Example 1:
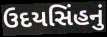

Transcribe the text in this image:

ઉદયસિંહનું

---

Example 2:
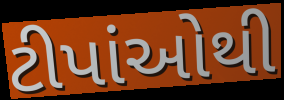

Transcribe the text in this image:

ટીપાંઓથી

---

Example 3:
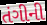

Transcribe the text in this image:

તંગીની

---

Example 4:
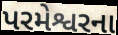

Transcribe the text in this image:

પરમેશ્વરના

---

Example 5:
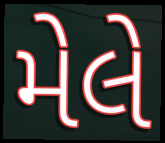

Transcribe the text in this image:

મેલે